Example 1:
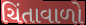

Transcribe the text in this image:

ચિંતાવાળો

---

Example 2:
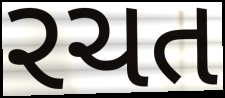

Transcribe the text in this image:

રચત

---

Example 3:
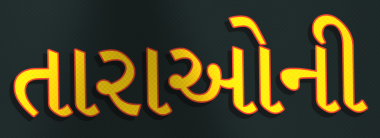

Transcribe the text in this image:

તારાઓની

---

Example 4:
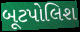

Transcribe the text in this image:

બૂટપોલિશ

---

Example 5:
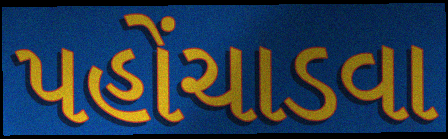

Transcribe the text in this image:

પહોંચાડવા